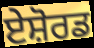
ਏਸ਼ੋਰਡ